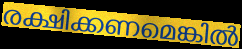
രക്ഷിക്കണമെങ്കിൽ